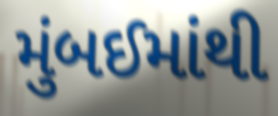
મુંબઈમાંથી